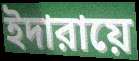
ইদারায়ে